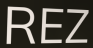
REZ